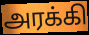
அரக்கி